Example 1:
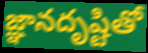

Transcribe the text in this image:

జ్ఞానదృష్టితో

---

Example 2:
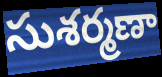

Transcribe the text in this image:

సుశర్మణా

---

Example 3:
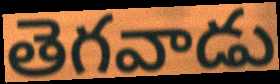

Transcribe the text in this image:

తెగవాడు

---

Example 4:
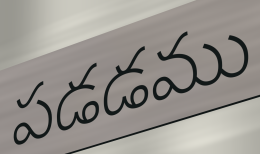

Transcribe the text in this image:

పడడము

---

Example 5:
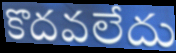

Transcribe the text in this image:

కొదవలేదు